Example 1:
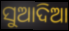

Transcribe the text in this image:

ସୁଆଦିଆ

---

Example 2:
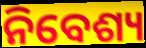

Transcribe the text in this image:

ନିବେଶ୍ୟ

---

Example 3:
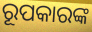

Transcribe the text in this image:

ରୂପକାରଙ୍କ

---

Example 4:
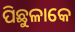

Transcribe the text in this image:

ପିଛୁଳାକେ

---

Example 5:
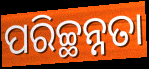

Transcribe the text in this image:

ପରିଚ୍ଛନ୍ନତା